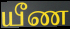
யீண